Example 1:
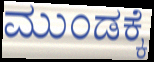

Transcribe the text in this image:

ಮುಂಡಕ್ಕೆ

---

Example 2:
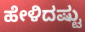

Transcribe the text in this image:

ಹೇಳಿದಷ್ಟು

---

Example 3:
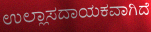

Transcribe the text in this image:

ಉಲ್ಲಾಸದಾಯಕವಾಗಿದೆ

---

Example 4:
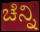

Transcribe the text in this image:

ಚೆನ್ನಿ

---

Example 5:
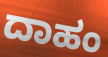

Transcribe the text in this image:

ದಾಹಂ